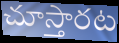
చూస్తారట